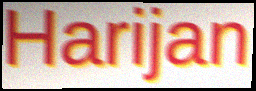
Harijan